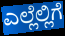
ಎಲ್ಲೆಲ್ಲಿಗೆ